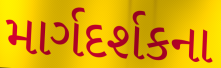
માર્ગદર્શકના